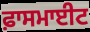
ਫ਼ਾਸਮਾਈਟ